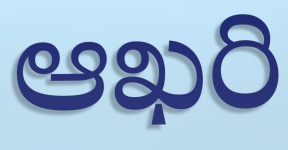
ఆఖరి